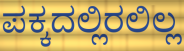
ಪಕ್ಕದಲ್ಲಿರಲಿಲ್ಲ